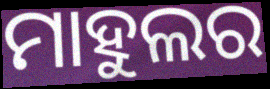
ମାହୁଲର